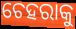
ଚେହରାକୁ